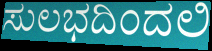
ಸುಲಭದಿಂದಲಿ